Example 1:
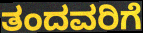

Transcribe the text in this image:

ತಂದವರಿಗೆ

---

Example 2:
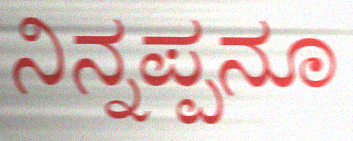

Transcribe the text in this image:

ನಿನ್ನಪ್ಪನೂ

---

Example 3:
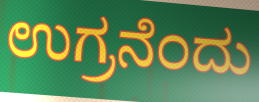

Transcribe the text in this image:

ಉಗ್ರನೆಂದು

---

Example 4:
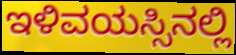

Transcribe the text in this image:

ಇಳಿವಯಸ್ಸಿನಲ್ಲಿ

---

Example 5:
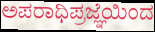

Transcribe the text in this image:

ಅಪರಾಧಿಪ್ರಜ್ಞೆಯಿಂದ